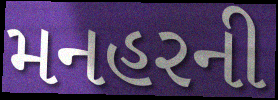
મનહરની